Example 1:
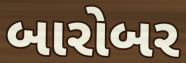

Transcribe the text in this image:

બારોબર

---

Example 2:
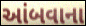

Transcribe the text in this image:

આંબવાના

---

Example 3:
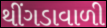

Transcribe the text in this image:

થીંગડાવાળી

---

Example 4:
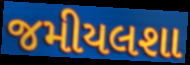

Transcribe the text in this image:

જમીયલશા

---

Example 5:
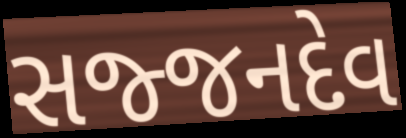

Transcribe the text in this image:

સજ્જનદેવ